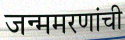
जन्ममरणांची